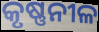
କୃଷ୍ଣନୀଳ